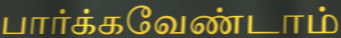
பார்க்கவேண்டாம்